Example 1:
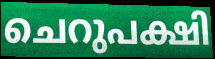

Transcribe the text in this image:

ചെറുപക്ഷി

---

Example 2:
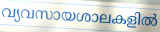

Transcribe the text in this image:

വ്യവസായശാലകളിൽ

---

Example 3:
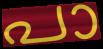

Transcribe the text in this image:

പാ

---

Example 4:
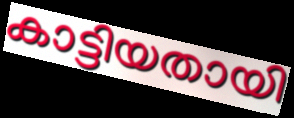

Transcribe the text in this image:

കാട്ടിയതായി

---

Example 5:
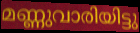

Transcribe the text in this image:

മണ്ണുവാരിയിട്ടു